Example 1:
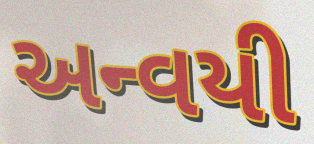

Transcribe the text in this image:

અન્વયી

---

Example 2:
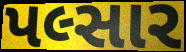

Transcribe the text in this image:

પલ્સાર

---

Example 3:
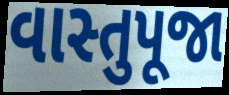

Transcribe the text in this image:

વાસ્તુપૂજા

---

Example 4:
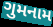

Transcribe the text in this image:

ગુમનામ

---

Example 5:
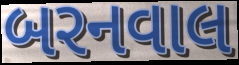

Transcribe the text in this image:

બરનવાલ